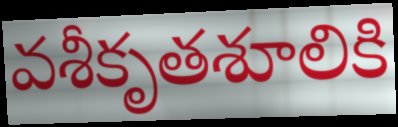
వశీకృతశూలికి